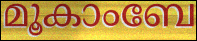
മൂകാംബേ